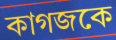
কাগজকে